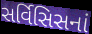
સર્વિસિસનાં